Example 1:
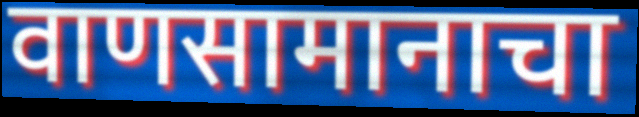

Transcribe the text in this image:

वाणसामानाचा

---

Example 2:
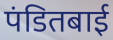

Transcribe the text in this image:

पंडितबाई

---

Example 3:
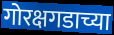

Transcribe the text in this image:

गोरक्षगडाच्या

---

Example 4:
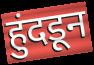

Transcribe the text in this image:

हुंदडून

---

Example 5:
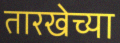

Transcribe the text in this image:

तारखेच्या